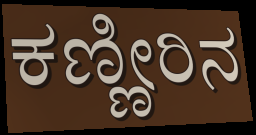
ಕಣ್ಣೀರಿನ